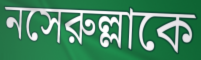
নসেরুল্লাকে